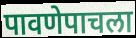
पावणेपाचला